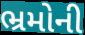
ભ્રમોની